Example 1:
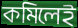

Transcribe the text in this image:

কমিলেই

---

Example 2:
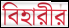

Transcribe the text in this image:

বিহারীর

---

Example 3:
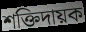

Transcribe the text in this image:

শক্তিদায়ক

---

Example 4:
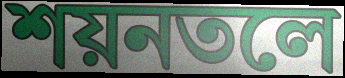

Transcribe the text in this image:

শয়নতলে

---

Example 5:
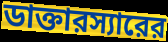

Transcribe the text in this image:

ডাক্তারস্যারের